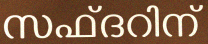
സഫ്ദറിന്